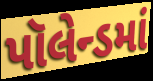
પૉલેન્ડમાં